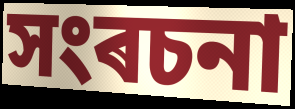
সংৰচনা